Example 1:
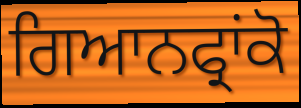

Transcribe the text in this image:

ਗਿਆਨਫ੍ਰਾਂਕੋ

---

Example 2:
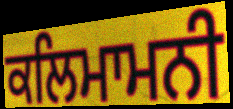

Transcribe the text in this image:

ਕਲਿਮਾਮਨੀ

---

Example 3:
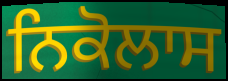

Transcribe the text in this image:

ਨਿਕੋਲਾਸ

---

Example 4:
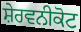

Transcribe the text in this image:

ਸ਼ੇਰਵਨੀਕੋਟ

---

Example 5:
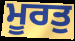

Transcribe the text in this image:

ਮੂਰਤੁ